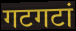
गटगटां